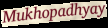
Mukhopadhyay